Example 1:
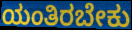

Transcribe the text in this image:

ಯಂತಿರಬೇಕು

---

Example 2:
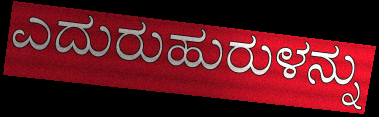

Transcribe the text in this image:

ಎದುರುಹುರುಳನ್ನು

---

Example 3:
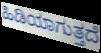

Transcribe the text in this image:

ಹಿಡಿಯಾಗುತ್ತದೆ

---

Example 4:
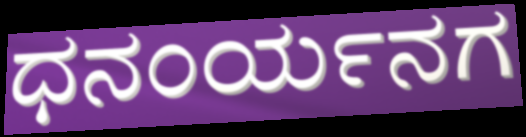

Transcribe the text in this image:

ಧನಂರ್ಯನಗ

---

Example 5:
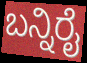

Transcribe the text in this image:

ಬನ್ನಿರೈ